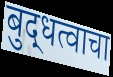
बुद्धत्वाचा